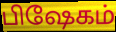
பிஷேகம்